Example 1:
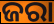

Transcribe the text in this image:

ଜରା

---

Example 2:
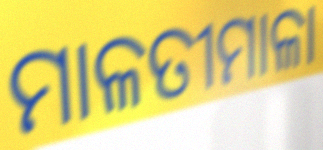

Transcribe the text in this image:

ମାଳତୀମାଳା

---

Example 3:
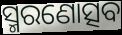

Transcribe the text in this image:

ସ୍ମରଣୋତ୍ସବ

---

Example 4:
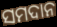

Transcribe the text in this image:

ସମଦାନ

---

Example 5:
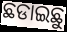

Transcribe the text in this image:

ଛଡାଇଛୁ